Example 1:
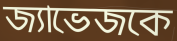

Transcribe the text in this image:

জ্যাভেজকে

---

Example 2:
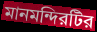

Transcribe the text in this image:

মানমন্দিরটির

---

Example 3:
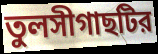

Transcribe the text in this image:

তুলসীগাছটির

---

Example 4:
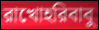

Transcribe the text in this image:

রাখোহরিবাবু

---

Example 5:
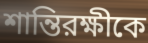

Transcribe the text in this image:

শান্তিরক্ষীকে